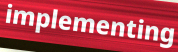
implementing